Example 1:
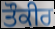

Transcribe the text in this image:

ਤੌਕੀਰ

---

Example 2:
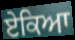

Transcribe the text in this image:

ਏਕਿਆ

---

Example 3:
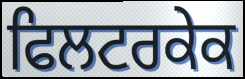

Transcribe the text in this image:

ਫਿਲਟਰਕੇਕ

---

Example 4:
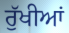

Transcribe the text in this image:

ਰੁੱਖੀਆਂ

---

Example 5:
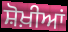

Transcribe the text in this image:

ਸ਼ੋਖ਼ੀਆਂ